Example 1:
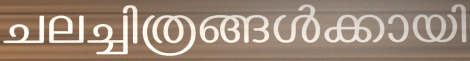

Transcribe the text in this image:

ചലച്ചിത്രങ്ങൾക്കായി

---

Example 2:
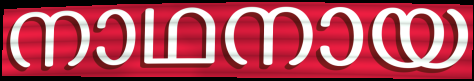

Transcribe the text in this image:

നാഥനായ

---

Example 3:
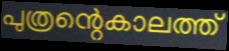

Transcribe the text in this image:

പുത്രന്റെകാലത്ത്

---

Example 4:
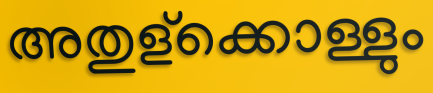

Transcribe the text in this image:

അതുള്ക്കൊള്ളും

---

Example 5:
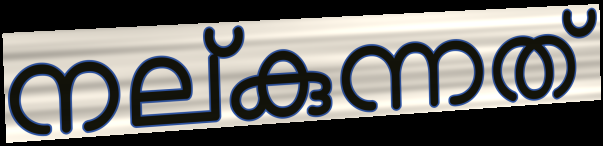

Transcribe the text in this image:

നല്കുന്നത്